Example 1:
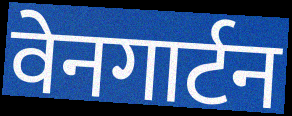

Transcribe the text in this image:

वेनगार्टन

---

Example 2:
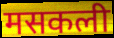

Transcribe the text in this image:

मसकली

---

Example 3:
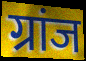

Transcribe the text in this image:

ग्रांज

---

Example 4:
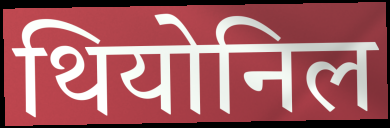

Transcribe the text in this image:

थियोनिल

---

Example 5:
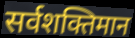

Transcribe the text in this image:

सर्वशक्तिमान